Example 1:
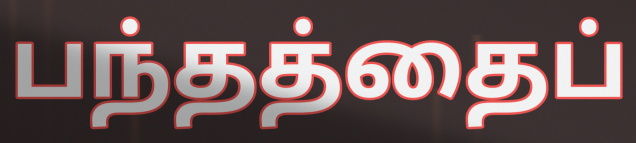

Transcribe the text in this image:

பந்தத்தைப்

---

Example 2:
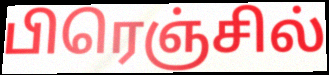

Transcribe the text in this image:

பிரெஞ்சில்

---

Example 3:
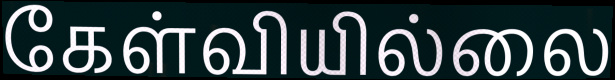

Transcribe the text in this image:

கேள்வியில்லை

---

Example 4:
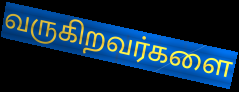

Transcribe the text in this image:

வருகிறவர்களை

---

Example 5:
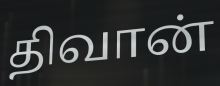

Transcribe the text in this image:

திவான்